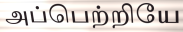
அப்பெற்றியே